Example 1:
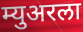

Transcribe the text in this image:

म्युअरला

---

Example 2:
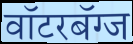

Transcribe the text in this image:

वॉटरबॅग्ज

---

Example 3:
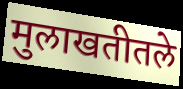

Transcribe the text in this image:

मुलाखतीतले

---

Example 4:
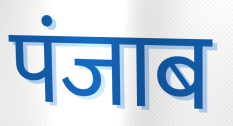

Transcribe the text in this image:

पंजाब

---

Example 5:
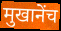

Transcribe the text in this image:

मुखानेंच